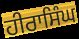
ਹੀਰਾਸਿੰਘ